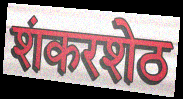
शंकरशेठ